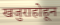
खजुराहोहून